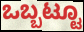
ಒಬ್ಬಟ್ಟೂ